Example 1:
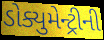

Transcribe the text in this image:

ડોક્યુમેન્ટ્રીની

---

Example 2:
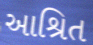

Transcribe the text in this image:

આશ્રિત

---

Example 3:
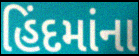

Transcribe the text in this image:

હિંદમાંના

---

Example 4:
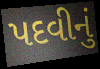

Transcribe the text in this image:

પદવીનું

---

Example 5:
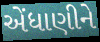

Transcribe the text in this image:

એંધાણીને